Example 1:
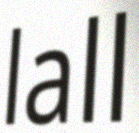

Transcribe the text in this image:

lall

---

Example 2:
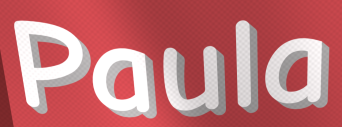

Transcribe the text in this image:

Paula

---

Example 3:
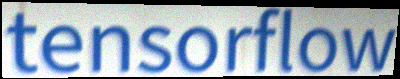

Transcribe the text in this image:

tensorflow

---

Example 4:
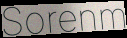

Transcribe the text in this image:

Sorenm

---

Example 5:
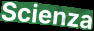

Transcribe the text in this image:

Scienza